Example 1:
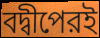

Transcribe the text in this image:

বদ্বীপেরই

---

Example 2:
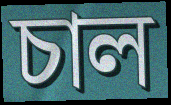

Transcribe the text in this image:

চাল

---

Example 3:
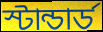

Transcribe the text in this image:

স্টান্ডার্ড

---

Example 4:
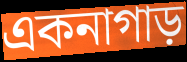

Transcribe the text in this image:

একনাগাড়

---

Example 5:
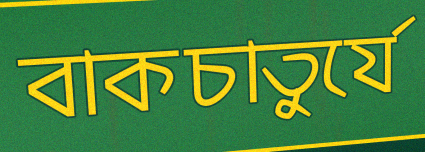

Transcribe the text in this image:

বাকচাতুর্যে